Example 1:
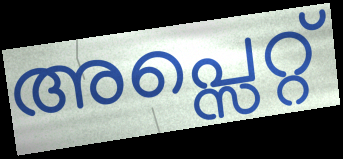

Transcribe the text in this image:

അപ്സെറ്റ്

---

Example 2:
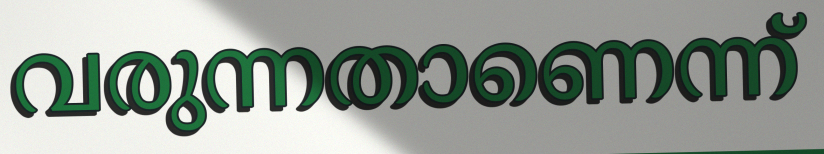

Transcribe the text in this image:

വരുന്നതാണെന്ന്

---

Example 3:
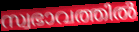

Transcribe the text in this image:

സ്വഭാവത്തിൽ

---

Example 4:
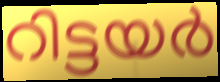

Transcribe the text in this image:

റിട്ടയർ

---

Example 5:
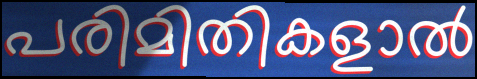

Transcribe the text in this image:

പരിമിതികളാൽ